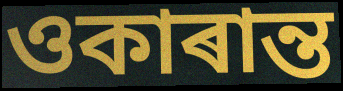
ওকাৰান্ত